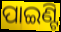
ପାଇଣ୍ଟି